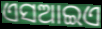
ଏସଆଇଏ